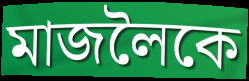
মাজলৈকে